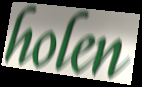
holen